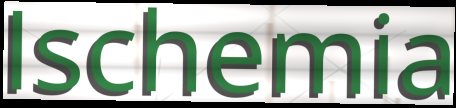
Ischemia